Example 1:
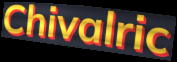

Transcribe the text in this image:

Chivalric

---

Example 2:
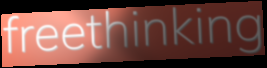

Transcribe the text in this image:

freethinking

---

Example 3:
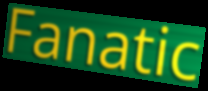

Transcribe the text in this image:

Fanatic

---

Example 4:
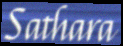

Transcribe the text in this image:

Sathara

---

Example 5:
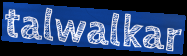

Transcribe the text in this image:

talwalkar